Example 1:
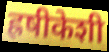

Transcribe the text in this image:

ह्रषीकेशी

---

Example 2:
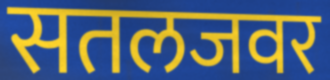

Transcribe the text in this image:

सतलजवर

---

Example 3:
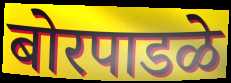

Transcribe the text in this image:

बोरपाडळे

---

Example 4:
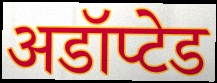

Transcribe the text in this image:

अडॉप्टेड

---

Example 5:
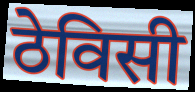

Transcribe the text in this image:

ठेविसी